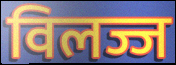
विलज्ज